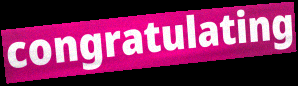
congratulating